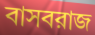
বাসবরাজ